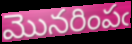
మొనరింపఁ